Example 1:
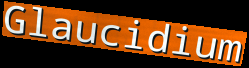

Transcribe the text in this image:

Glaucidium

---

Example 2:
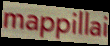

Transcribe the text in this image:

mappillai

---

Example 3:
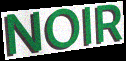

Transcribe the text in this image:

NOIR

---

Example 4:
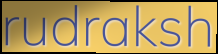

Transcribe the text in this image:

rudraksh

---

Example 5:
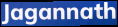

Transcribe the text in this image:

Jagannath